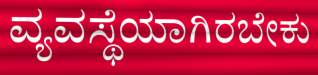
ವ್ಯವಸ್ಥೆಯಾಗಿರಬೇಕು